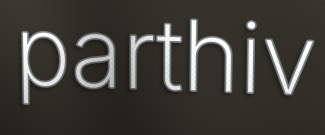
parthiv